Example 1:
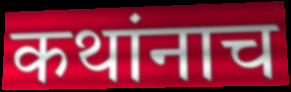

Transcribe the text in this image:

कथांनाच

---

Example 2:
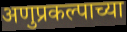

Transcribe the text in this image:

अणुप्रकल्पाच्या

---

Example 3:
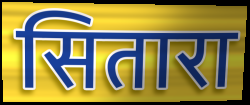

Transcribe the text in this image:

सितारा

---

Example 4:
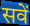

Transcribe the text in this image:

सवें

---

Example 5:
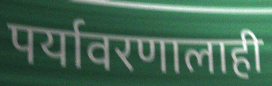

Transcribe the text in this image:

पर्यावरणालाही